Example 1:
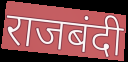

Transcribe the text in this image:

राजबंदी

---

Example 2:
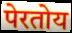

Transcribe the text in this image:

पेरतोय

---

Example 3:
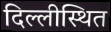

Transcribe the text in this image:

दिल्लीस्थित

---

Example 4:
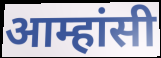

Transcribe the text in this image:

आम्हांसी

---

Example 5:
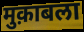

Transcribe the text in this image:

मुक़ाबला